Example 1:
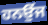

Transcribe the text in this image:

ਹਨਉਂਜ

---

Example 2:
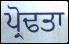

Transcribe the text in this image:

ਪ੍ਰੋਢਤਾ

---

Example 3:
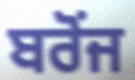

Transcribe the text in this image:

ਬਰੋਂਜ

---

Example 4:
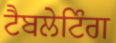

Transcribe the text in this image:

ਟੈਬਲੇਟਿੰਗ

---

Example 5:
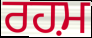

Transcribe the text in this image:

ਰਹ਼ਮ